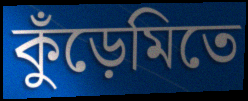
কুঁড়েমিতে